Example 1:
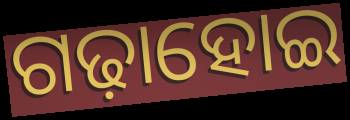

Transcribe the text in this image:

ଗଢ଼ାହୋଇ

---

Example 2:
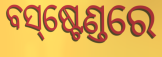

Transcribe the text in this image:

ବସ୍‌ଷ୍ଟେଣ୍ଡରେ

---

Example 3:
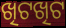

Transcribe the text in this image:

ଖିଟଖିଟ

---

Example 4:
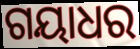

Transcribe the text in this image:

ଗୟାଧର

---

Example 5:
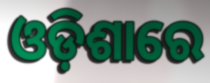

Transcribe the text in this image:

ଓଡ଼ିଶାରେ